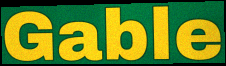
Gable